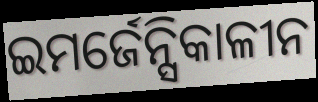
ଇମର୍ଜେନ୍ସିକାଳୀନ